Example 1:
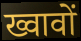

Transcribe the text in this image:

ख्वावों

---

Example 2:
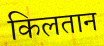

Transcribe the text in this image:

किलतान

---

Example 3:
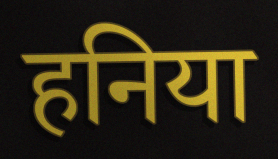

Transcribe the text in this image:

हनिया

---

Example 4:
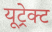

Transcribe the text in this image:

यूट्रेक्ट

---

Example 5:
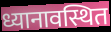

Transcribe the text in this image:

ध्यानावस्थित